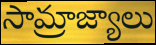
సామ్రాజ్యాలు